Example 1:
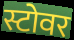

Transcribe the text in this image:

स्टोवर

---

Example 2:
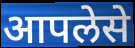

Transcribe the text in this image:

आपलेसे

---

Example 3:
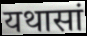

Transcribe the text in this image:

यथासां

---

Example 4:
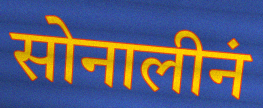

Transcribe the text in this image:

सोनालीनं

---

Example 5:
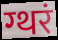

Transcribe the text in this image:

ग्थरं